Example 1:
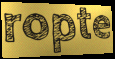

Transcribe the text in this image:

ropte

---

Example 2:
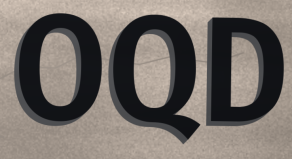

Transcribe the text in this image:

OQD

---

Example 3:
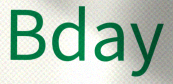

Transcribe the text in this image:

Bday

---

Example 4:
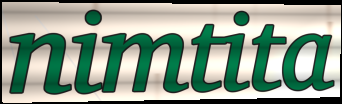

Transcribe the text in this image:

nimtita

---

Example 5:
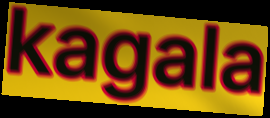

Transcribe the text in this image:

kagala